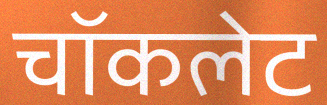
चॉकलेट